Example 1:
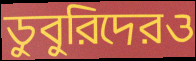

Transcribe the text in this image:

ডুবুরিদেরও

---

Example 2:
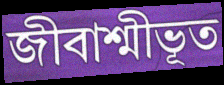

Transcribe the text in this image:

জীবাশ্মীভূত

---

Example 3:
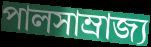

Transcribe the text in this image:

পালসাম্রাজ্য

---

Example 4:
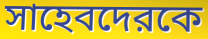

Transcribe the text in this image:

সাহেবদেরকে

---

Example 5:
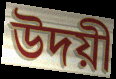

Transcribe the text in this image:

উদয়ী